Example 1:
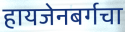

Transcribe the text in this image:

हायजेनबर्गचा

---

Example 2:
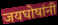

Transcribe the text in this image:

जयघोषांनी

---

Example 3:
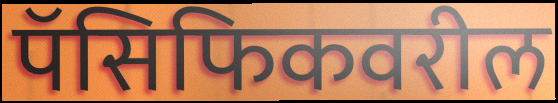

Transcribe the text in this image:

पॅसिफिकवरील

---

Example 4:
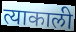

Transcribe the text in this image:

त्याकाली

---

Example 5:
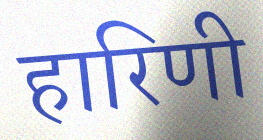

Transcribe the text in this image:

हारिणी